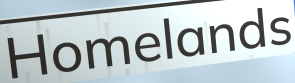
Homelands